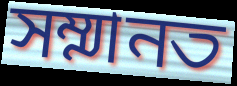
সম্মানত